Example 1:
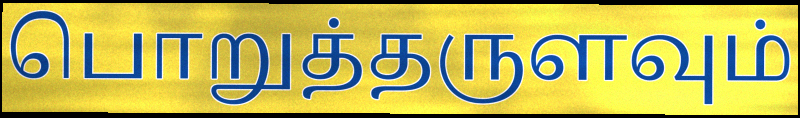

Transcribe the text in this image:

பொறுத்தருளவும்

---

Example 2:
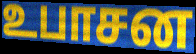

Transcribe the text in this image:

உபாசன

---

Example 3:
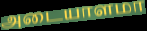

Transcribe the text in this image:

அடையாளமா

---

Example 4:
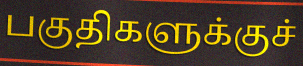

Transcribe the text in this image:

பகுதிகளுக்குச்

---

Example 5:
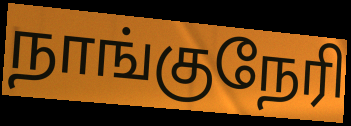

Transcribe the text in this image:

நாங்குநேரி